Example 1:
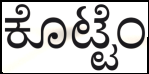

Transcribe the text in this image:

ಕೊಟ್ಟೆಂ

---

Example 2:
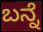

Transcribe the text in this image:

ಬನ್ನೆ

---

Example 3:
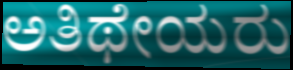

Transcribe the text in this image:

ಅತಿಥೇಯರು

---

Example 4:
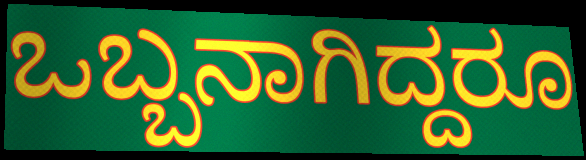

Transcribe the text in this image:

ಒಬ್ಬನಾಗಿದ್ದರೂ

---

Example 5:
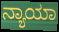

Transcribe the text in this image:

ನ್ಯಾಯಾ